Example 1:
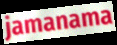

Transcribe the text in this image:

jamanama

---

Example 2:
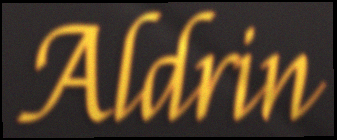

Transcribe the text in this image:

Aldrin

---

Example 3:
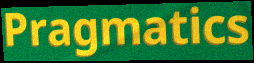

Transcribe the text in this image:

Pragmatics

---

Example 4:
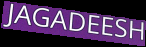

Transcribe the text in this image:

JAGADEESH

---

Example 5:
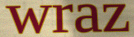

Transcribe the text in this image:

wraz